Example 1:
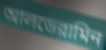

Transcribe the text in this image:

আলডেরামিন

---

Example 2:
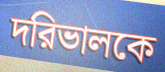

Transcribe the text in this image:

দরিভালকে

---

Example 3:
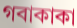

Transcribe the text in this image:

গবাকাকা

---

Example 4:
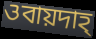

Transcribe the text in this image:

ওবায়দাহ্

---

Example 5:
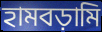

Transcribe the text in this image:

হামবড়ামি